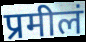
प्रमीलं